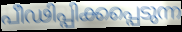
പീഢിപ്പിക്കപ്പെടുന്ന